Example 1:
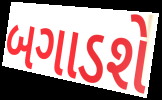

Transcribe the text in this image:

બગાડશે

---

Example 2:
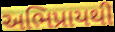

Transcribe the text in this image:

અભિપ્રાયથી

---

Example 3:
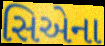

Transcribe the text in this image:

સિએના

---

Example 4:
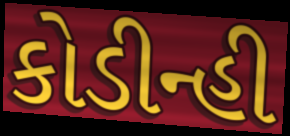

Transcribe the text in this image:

કોડીન્હી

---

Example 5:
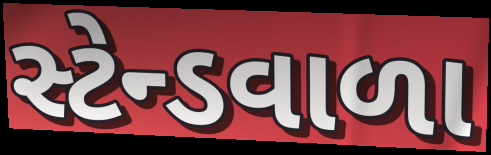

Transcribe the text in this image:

સ્ટેન્ડવાળા